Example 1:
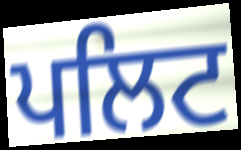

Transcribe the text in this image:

ਪਲਿਟ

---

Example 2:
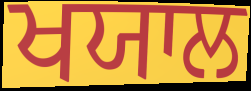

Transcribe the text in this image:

ਖਯਾਲ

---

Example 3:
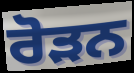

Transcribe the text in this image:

ਰੋੜਨ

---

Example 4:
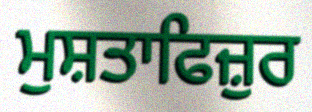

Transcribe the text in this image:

ਮੁਸ਼ਤਾਫਿਜ਼ੁਰ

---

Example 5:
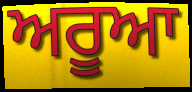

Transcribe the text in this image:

ਅਰੂਆ